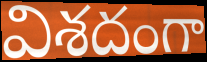
విశదంగా